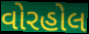
વોરહોલ